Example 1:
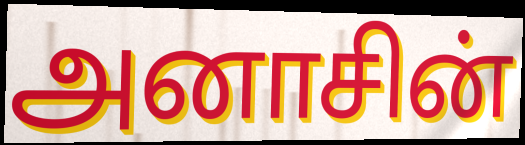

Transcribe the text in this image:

அனாசின்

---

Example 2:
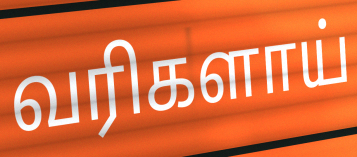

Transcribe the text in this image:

வரிகளாய்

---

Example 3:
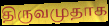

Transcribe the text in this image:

திருவமுதாக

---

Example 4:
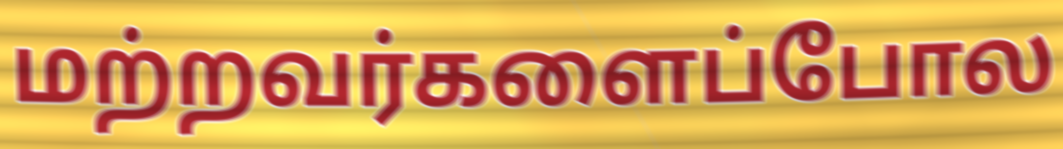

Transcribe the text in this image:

மற்றவர்களைப்போல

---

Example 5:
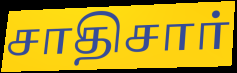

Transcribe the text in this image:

சாதிசார்